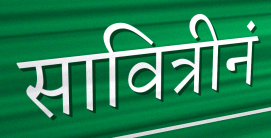
सावित्रीनं